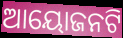
ଆୟୋଜନଟି